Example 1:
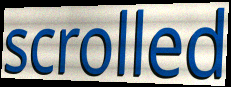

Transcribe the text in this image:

scrolled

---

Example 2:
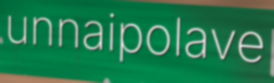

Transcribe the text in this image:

unnaipolave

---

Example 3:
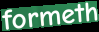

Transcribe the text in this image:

formeth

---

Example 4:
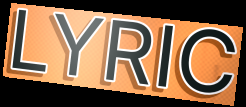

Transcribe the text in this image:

LYRIC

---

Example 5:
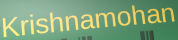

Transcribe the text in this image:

Krishnamohan